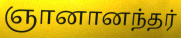
ஞானானந்தர்